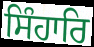
ਸਿੰਹਾਰਿ